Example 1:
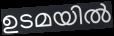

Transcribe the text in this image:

ഉടമയിൽ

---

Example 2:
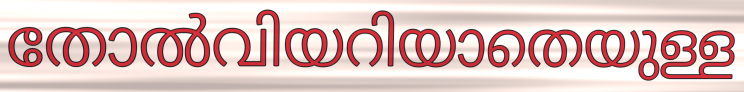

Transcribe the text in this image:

തോൽവിയറിയാതെയുള്ള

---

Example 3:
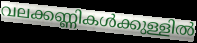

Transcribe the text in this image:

വലക്കണ്ണികൾക്കുള്ളിൽ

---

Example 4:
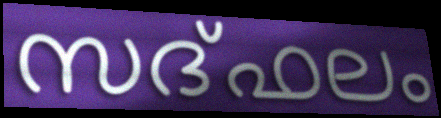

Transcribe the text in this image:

സദ്ഫലം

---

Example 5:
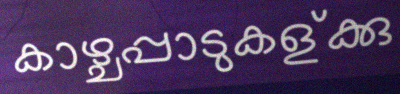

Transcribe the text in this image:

കാഴ്ചപ്പാടുകള്ക്കു